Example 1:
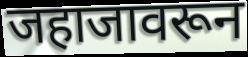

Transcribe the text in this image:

जहाजावरून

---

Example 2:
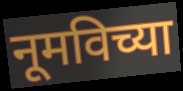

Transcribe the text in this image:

नूमविच्या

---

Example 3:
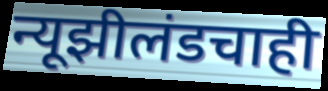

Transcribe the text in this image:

न्यूझीलंडचाही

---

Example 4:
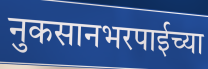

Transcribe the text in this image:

नुकसानभरपाईच्या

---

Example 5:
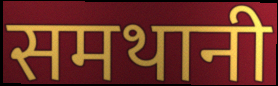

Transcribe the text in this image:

समथानी